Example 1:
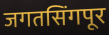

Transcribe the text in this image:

जगतसिंगपूर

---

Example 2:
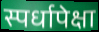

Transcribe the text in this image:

स्पर्धापेक्षा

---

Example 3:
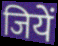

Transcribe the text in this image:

जियें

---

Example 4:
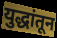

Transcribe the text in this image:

युद्धांतून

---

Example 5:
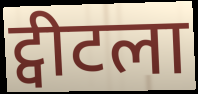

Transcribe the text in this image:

ट्वीटला